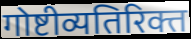
गोष्टीव्यतिरिक्त